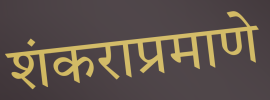
शंकराप्रमाणे